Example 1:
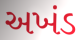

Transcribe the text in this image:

અખંડ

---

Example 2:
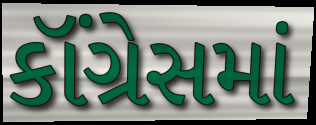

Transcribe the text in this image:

કૉંગ્રેસમાં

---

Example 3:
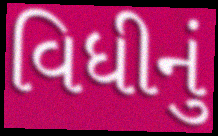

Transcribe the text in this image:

વિધીનું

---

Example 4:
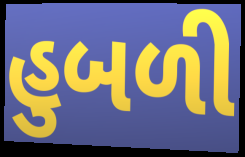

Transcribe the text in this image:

હુબળી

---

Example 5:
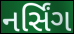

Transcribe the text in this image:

નર્સિંગ